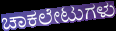
ಚಾಕಲೇಟುಗಳು